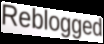
Reblogged